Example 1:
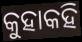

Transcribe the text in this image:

କୁହାକହି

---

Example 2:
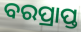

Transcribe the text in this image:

ବରପ୍ରାପ୍ତ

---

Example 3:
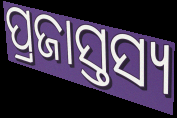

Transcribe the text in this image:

ପ୍ରଜାସ୍ତସ୍ୟ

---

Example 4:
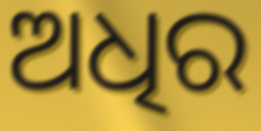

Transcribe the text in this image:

ଅଧିର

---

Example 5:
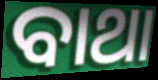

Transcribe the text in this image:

ବାଥା